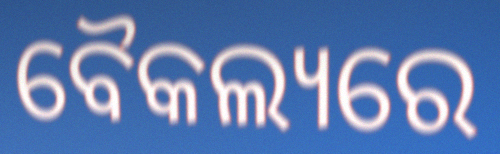
ବୈକଲ୍ୟରେ